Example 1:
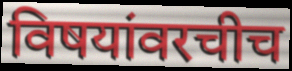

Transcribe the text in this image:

विषयांवरचीच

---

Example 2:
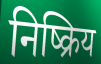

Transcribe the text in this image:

निष्क्रिय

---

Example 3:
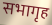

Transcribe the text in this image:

सभागृह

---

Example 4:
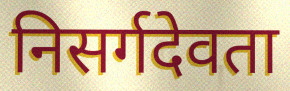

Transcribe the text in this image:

निसर्गदेवता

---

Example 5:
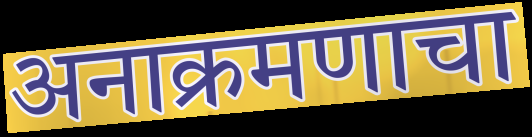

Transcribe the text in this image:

अनाक्रमणाचा